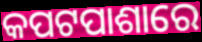
କପଟପାଶାରେ